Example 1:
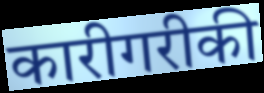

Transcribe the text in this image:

कारीगरीकी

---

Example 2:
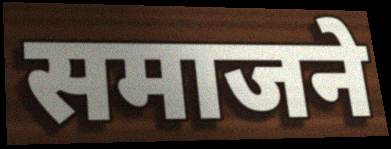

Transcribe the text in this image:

समाजने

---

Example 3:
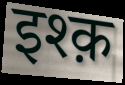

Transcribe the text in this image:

इश्क़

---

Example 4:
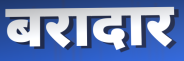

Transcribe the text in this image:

बरादार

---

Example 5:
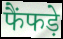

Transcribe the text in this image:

फैंफड़े